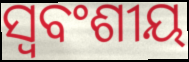
ସ୍ଵବଂଶୀୟ